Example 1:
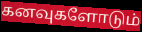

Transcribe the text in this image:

கனவுகளோடும்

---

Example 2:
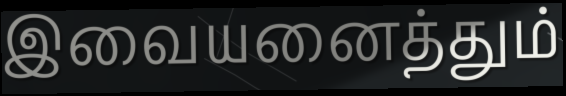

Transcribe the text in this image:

இவையனைத்தும்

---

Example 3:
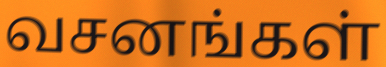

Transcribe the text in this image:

வசனங்கள்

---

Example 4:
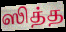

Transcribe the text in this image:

ஸித்த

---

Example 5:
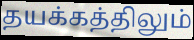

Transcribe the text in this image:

தயக்கத்திலும்